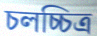
চলচ্চিত্র